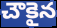
చౌకైన